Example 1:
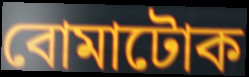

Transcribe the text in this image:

বোমাটোক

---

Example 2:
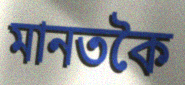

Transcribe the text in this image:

মানতকৈ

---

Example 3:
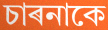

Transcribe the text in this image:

চাৰনাকে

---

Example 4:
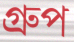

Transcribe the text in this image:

গ্ৰুপ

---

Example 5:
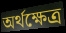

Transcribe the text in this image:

অৰ্থক্ষেত্ৰ